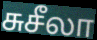
சுசீலா